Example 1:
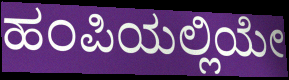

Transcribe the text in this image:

ಹಂಪಿಯಲ್ಲಿಯೇ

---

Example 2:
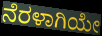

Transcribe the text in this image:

ನೆರಳಾಗಿಯೇ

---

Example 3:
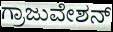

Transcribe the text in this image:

ಗ್ರಾಜುವೇಶನ್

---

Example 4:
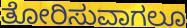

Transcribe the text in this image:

ತೋರಿಸುವಾಗಲೂ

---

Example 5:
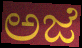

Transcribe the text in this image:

ಅಜೆ